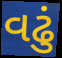
વઢું